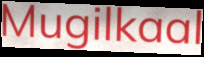
Mugilkaal